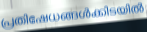
പ്രതിഷേധങ്ങൾക്കിടയിൽ